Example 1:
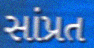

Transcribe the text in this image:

સાંપ્રત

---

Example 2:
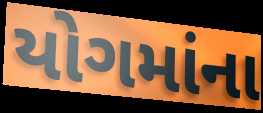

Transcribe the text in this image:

યોગમાંના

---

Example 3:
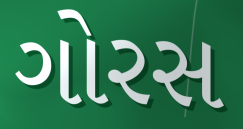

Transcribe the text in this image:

ગોરસ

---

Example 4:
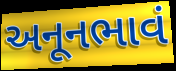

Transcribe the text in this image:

અનૂનભાવં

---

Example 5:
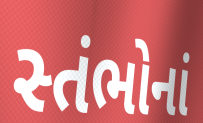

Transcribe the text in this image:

સ્તંભોનાં